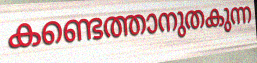
കണ്ടെത്താനുതകുന്ന